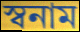
স্বনাম